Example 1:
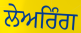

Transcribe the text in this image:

ਲੇਅਰਿੰਗ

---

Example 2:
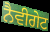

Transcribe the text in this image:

ਨੈਵੀਗੇਟ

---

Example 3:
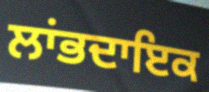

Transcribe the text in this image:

ਲਾਂਭਦਾਇਕ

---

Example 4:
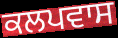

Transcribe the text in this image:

ਕਲਪਵਾਸ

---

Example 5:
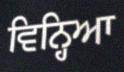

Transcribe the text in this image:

ਵਿਨ੍ਹਿਆ